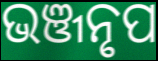
ଭଞ୍ଜନୃପ